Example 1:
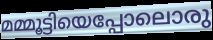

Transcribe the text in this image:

മമ്മൂട്ടിയെപ്പോലൊരു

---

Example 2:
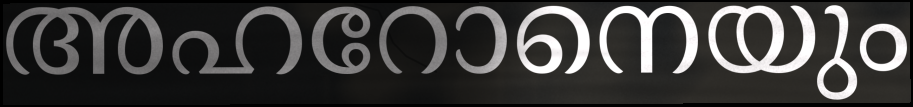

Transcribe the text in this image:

അഹറോനെയും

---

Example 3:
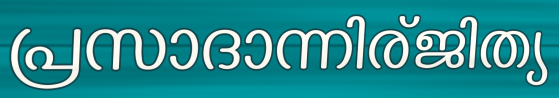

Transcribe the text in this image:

പ്രസാദാന്നിര്ജിത്യ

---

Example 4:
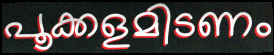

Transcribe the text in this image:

പൂക്കളമിടണം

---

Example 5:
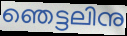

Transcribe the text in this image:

ഞെട്ടലിനു